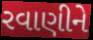
રવાણીને